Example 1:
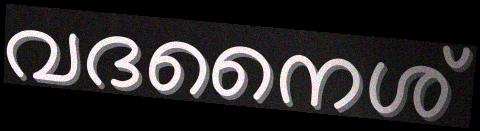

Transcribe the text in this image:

വദനൈശ്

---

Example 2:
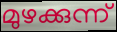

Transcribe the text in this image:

മുഴക്കുന്ന്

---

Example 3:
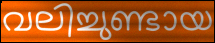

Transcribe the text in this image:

വലിച്ചുണ്ടായ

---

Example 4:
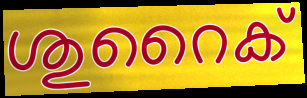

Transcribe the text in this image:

ശുറൈക്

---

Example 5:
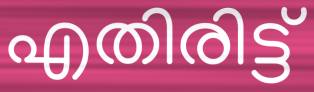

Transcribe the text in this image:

എതിരിട്ട്